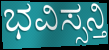
ಭವಿಸ್ಸನ್ತಿ